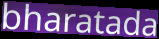
bharatada